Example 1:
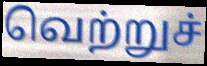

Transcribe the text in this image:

வெற்றுச்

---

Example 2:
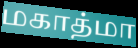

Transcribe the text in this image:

மகாத்மா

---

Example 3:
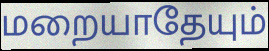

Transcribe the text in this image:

மறையாதேயும்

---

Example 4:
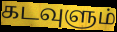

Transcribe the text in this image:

கடவுளும்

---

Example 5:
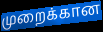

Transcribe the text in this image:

முறைக்கான